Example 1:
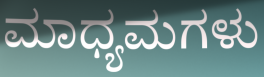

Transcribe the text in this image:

ಮಾಧ್ಯಮಗಳು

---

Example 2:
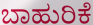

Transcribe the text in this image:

ಬಾಹುರಿಕೆ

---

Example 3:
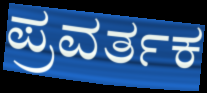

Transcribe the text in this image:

ಪ್ರವರ್ತಕ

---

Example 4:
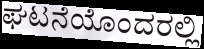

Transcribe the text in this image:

ಘಟನೆಯೊಂದರಲ್ಲಿ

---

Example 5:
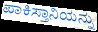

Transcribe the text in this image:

ಪಾಕಿಸ್ತಾನಿಯನ್ನು